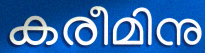
കരീമിനു